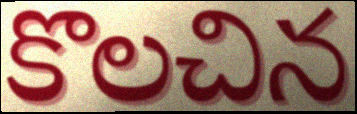
కొలచిన